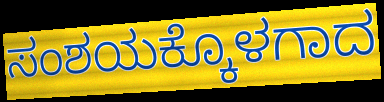
ಸಂಶಯಕ್ಕೊಳಗಾದ